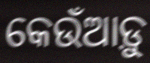
କେଉଁଆଡ଼ୁ